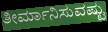
ತೀರ್ಮಾನಿಸುವಷ್ಟು